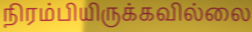
நிரம்பியிருக்கவில்லை